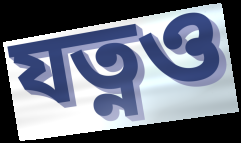
যত্নও